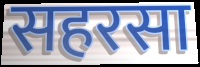
सहरसा